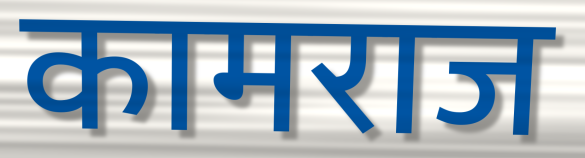
कामराज